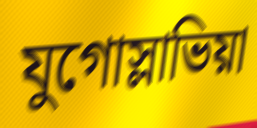
যুগোস্লাভিয়া